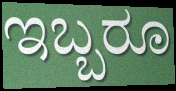
ಇಬ್ಬರೂ